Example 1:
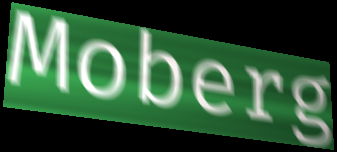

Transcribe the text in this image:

Moberg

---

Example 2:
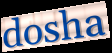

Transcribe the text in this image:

dosha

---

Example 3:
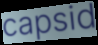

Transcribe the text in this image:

capsid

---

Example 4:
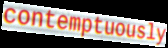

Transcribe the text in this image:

contemptuously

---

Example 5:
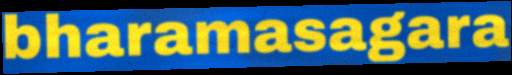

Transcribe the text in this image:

bharamasagara